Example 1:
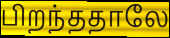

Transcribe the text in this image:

பிறந்ததாலே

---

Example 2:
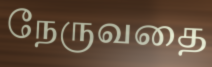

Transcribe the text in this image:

நேருவதை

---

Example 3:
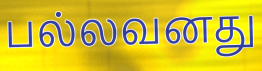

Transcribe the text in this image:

பல்லவனது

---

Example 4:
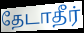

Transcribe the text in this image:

தேடாதீர்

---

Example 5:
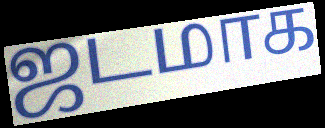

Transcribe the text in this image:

ஜடமாக